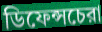
ডিফেন্সচেরা